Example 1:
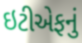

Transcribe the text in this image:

ઇટીએફનું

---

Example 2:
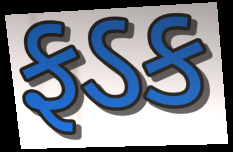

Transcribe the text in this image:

ફડક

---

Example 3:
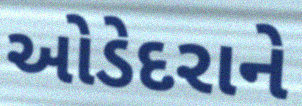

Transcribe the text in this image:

ઓડેદરાને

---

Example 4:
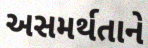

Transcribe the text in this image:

અસમર્થતાને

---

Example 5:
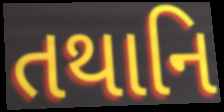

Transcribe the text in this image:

તથાનિ